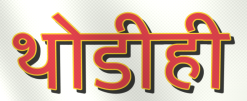
थोडीही